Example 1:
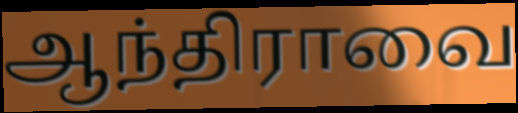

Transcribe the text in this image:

ஆந்திராவை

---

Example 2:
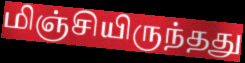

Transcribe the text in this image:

மிஞ்சியிருந்தது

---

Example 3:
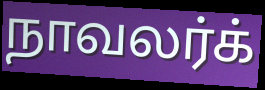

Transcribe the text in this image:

நாவலர்க்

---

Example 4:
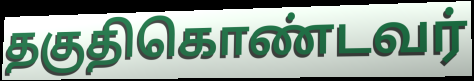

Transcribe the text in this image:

தகுதிகொண்டவர்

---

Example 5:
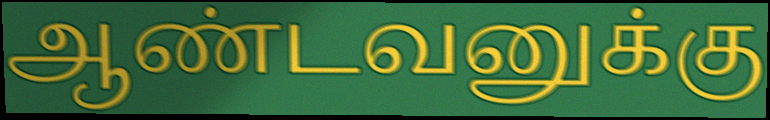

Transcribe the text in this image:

ஆண்டவனுக்கு